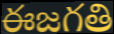
ఈజగతి